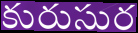
కురుసుర